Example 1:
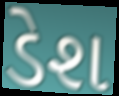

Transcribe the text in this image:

ડેશ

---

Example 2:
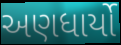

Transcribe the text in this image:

અણધાર્યો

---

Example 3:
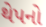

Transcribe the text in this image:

થેપનો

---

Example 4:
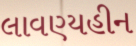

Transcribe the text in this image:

લાવણ્યહીન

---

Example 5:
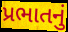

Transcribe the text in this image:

પ્રભાતનું